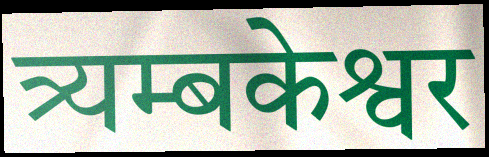
त्र्यम्बकेश्वर